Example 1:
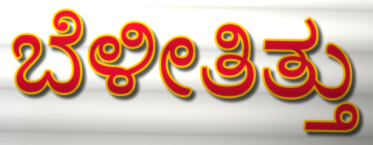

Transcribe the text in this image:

ಬೆಳೀತಿತ್ತು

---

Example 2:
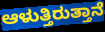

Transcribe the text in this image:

ಆಳುತ್ತಿರುತ್ತಾನೆ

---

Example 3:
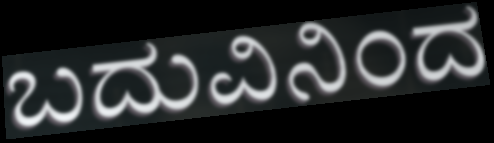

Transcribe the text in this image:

ಬದುವಿನಿಂದ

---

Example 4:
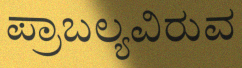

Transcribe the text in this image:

ಪ್ರಾಬಲ್ಯವಿರುವ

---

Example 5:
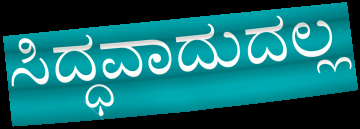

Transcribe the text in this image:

ಸಿದ್ಧವಾದುದಲ್ಲ